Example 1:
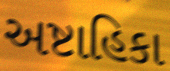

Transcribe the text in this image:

અષ્ટાહિકા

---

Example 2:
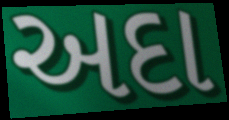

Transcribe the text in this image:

અદા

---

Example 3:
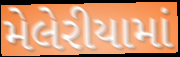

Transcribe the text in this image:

મેલેરીયામાં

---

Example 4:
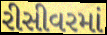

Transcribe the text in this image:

રીસીવરમાં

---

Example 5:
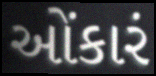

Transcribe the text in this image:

ઓંકારં